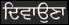
ਦਿਵਾਉਣਾ